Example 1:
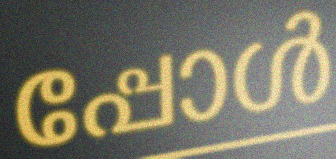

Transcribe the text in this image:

പ്പോൾ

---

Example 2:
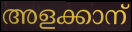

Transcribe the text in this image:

അളക്കാന്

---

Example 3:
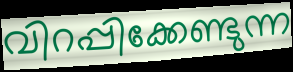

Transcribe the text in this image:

വിറപ്പിക്കേണ്ടുന്ന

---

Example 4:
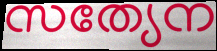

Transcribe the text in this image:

സത്യേന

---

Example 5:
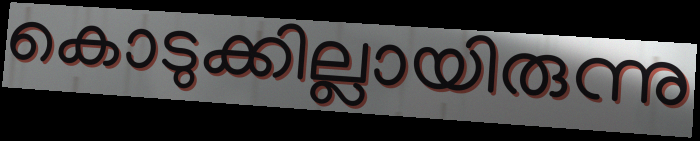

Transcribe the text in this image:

കൊടുക്കില്ലായിരുന്നു